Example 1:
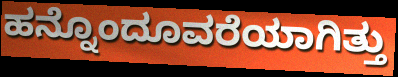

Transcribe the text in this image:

ಹನ್ನೊಂದೂವರೆಯಾಗಿತ್ತು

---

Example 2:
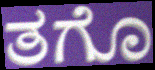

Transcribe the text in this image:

ತಗೊ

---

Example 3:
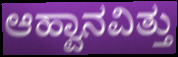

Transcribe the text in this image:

ಆಹ್ವಾನವಿತ್ತು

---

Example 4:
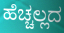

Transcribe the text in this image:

ಹೆಚ್ಚಲ್ಲದ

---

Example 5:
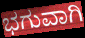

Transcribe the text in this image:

ಭಗುವಾಗಿ